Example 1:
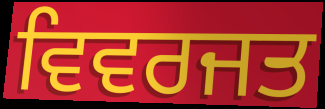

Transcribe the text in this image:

ਵਿਵਰਜਤ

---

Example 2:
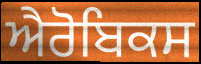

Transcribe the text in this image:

ਐਰੋਬਿਕਸ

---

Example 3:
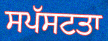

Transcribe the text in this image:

ਸਪੱਸਟਤਾ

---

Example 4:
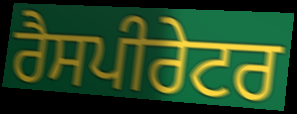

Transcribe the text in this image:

ਰੈਸਪੀਰੇਟਰ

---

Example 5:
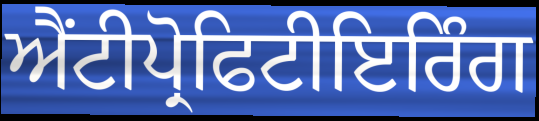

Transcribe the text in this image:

ਐਂਟੀਪ੍ਰੋਫਿਟੀਇਰਿੰਗ